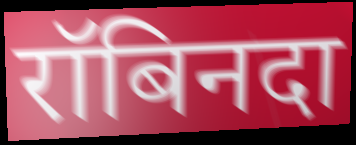
रॉबिनदा